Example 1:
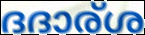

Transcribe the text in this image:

ദദാര്ശ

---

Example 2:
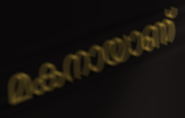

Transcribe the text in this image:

മകനായാണ്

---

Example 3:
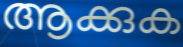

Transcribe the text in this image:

ആക്കുക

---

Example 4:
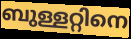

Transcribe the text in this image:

ബുള്ളറ്റിനെ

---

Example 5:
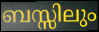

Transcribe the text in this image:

ബസ്സിലും